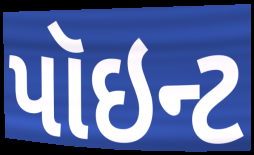
પૉઇન્ટ